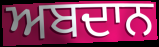
ਅਬਦਾਨ